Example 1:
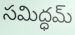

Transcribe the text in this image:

సమిద్ధమ్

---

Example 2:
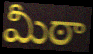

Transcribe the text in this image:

మీఠా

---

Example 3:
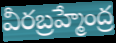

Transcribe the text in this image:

వీరబ్రహ్మేంద్ర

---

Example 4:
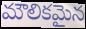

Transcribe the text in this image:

మౌలికమైన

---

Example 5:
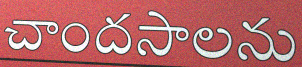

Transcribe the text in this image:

చాందసాలను